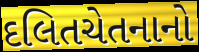
દલિતચેતનાનો